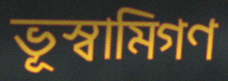
ভূস্বামিগণ